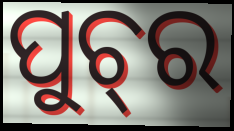
ପୁଚ୍‍ର